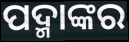
ପଦ୍ମାଙ୍କର